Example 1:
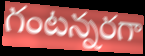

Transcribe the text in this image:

గంటన్నరగా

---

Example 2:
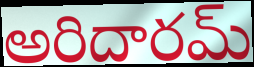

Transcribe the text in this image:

అరిదారమ్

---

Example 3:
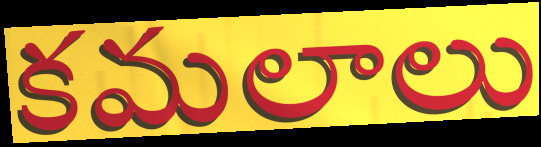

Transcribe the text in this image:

కమలాలు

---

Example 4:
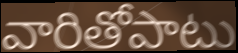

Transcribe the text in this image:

వారితోపాటు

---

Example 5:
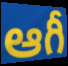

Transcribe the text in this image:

ఆగీ